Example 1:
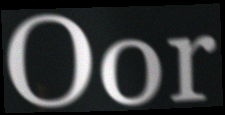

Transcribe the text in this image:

Oor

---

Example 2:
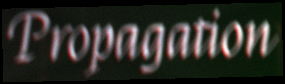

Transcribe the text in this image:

Propagation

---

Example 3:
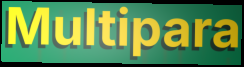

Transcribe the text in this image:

Multipara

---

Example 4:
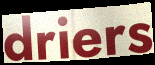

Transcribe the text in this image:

driers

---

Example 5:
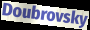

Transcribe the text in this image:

Doubrovsky